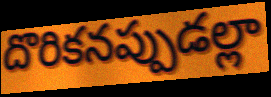
దొరికనప్పుడల్లా